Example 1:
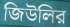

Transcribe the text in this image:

জিউলির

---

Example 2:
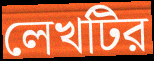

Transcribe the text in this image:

লেখটির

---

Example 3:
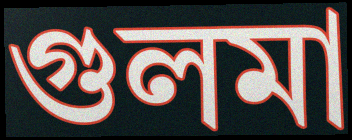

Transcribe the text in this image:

গুলমা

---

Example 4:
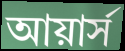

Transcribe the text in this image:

আয়ার্স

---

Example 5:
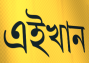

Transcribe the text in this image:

এইখান